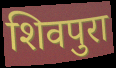
शिवपुरा